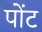
पोंट